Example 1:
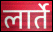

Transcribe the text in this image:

लार्ते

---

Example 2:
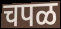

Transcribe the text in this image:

चपळ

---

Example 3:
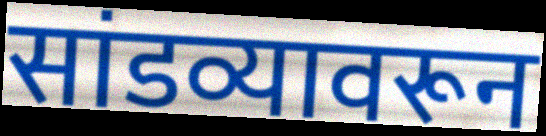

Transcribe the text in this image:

सांडव्यावरून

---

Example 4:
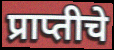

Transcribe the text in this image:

प्राप्तीचे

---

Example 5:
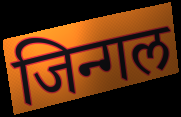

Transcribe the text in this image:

जिन्गल